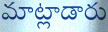
మాట్లాడారు